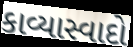
કાવ્યાસ્વાદો